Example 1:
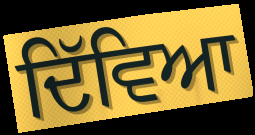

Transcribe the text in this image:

ਦਿੱਵਿਆ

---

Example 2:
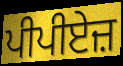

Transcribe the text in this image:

ਪੀਪੀਏਜ਼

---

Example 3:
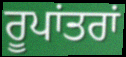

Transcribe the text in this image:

ਰੂਪਾਂਤਰਾਂ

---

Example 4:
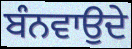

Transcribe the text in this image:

ਬੰਨਵਾਉਦੇ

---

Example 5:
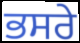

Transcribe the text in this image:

ਭਸਰੇ